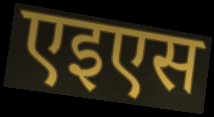
एइएस